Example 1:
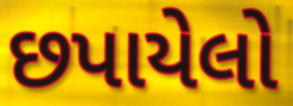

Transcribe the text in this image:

છપાયેલો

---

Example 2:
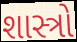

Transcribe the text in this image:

શાસ્ત્રો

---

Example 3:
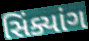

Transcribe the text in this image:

સિંક્યાંગ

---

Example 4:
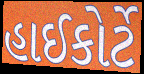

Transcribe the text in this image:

હાઈકોર્ટે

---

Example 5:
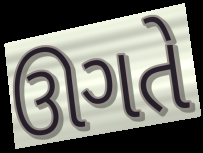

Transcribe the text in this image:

ઊગતે